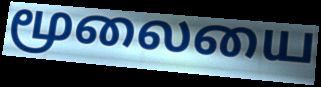
மூலையை